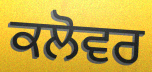
ਕਲੋਵਰ